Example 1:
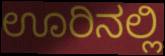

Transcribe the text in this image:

ಊರಿನಲ್ಲಿ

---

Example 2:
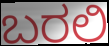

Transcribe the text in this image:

ಬರಲಿ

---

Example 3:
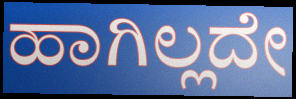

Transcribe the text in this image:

ಹಾಗಿಲ್ಲದೇ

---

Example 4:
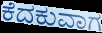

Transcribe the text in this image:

ಕೆದಕುವಾಗ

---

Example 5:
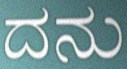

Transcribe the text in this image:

ದನು